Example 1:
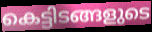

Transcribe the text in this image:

കെട്ടിടങ്ങളുടെ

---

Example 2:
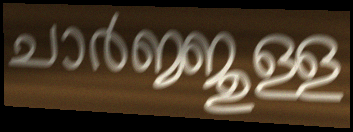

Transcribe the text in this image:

ചാർജ്ജുള്ള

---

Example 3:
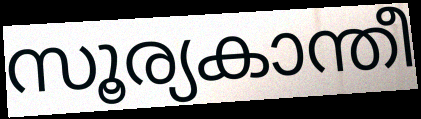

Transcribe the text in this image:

സൂര്യകാന്തീ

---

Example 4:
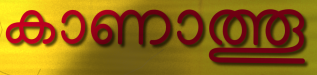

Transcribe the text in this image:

കാണാത്തൂ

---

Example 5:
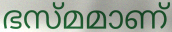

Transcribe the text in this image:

ഭസ്മമാണ്